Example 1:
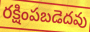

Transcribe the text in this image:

రక్షింపబడెదవు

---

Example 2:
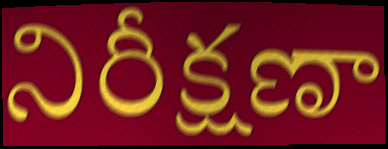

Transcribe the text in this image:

నిరీక్షణా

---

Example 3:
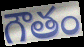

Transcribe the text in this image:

గౌతం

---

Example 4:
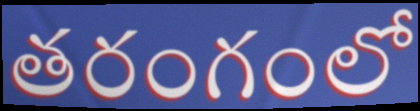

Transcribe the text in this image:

తరంగంలో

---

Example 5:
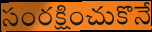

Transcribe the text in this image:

సంరక్షించుకొనే